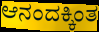
ಆನಂದಕ್ಕಿಂತ